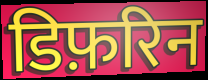
डिफ़रिन